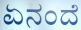
ಏನಂದೆ